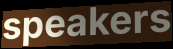
speakers